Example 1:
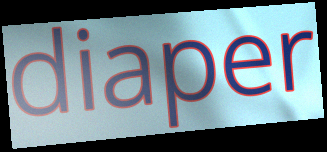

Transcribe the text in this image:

diaper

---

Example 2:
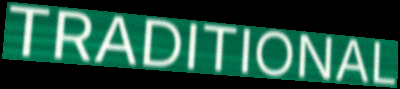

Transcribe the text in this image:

TRADITIONAL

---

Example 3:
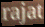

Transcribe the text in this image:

rajat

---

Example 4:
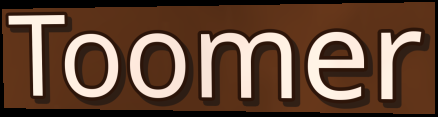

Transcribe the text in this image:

Toomer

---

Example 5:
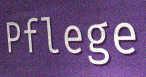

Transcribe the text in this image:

Pflege